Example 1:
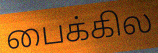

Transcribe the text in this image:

பைக்கில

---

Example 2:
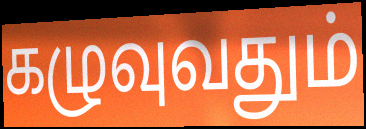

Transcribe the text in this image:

கழுவுவதும்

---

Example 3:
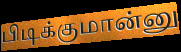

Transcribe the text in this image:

பிடிக்குமான்னு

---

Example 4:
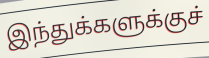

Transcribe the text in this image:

இந்துக்களுக்குச்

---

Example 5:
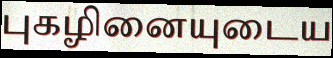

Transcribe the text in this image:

புகழினையுடைய